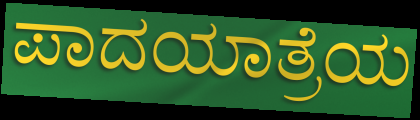
ಪಾದಯಾತ್ರೆಯ